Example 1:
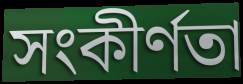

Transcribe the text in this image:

সংকীর্ণতা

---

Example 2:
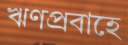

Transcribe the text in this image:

ঋণপ্রবাহে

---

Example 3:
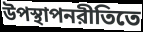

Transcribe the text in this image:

উপস্থাপনরীতিতে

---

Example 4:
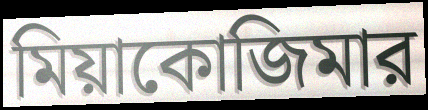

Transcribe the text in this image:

মিয়াকোজিমার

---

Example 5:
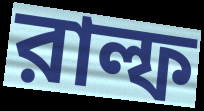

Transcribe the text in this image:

রাল্ফ